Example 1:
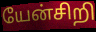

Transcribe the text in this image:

யேன்சிறி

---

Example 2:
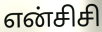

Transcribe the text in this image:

என்சிசி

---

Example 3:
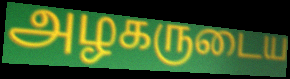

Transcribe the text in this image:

அழகருடைய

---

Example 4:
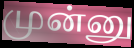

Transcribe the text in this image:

முன்னு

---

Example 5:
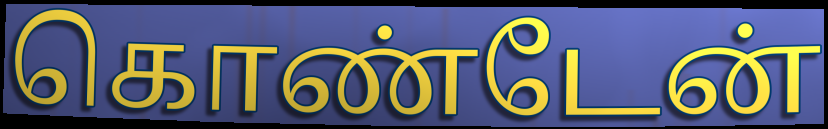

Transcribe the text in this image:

கொண்டேன்